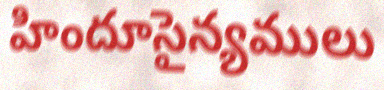
హిందూసైన్యములు